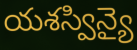
యశస్విన్యై